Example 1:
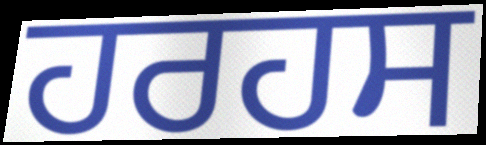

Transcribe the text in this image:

ਹਰਹਸ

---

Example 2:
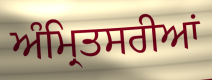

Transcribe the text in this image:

ਅੰਮ੍ਰਿਤਸਰੀਆਂ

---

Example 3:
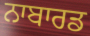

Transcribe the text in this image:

ਨਾਬਾਰਡ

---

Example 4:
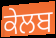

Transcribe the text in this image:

ਕੇਲਬ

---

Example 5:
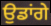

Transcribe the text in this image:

ਉਡਾਂਗੇ